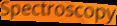
Spectroscopy